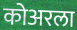
कोअरला